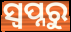
ସ୍ୱପ୍ନରୁ